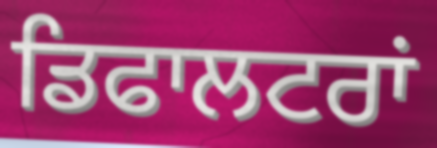
ਡਿਫਾਲਟਰਾਂ